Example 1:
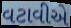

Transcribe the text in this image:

વટાવીએ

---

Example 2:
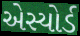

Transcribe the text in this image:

એસ્યોર્ડ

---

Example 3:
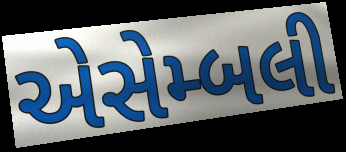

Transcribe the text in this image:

એસેમ્બલી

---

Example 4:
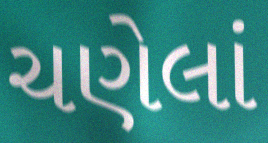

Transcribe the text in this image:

ચણેલાં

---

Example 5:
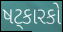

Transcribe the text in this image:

ષટ્કારકો